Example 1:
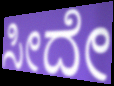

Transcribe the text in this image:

ಸೀದೇ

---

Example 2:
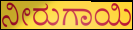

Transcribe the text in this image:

ನೀರುಗಾಯಿ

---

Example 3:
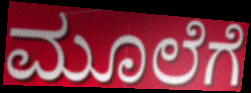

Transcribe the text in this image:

ಮೂಲೆಗೆ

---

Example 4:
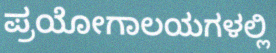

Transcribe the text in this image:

ಪ್ರಯೋಗಾಲಯಗಳಲ್ಲಿ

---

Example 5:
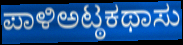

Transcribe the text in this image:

ಪಾಳಿಅಟ್ಠಕಥಾಸು